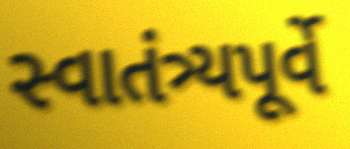
સ્વાતંત્ર્યપૂર્વે